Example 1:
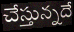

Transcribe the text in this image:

చేస్తున్నదే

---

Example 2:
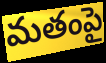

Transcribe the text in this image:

మతంపై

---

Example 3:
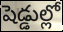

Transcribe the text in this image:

షెడ్డుల్లో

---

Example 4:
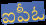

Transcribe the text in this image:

ఐపీఓ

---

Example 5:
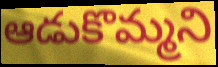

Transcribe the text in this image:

ఆడుకొమ్మని